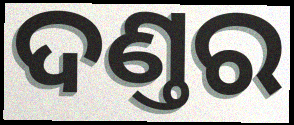
ଦଣ୍ତର